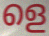
ളെ